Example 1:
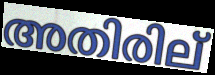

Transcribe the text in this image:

അതിരില്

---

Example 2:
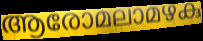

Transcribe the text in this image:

ആരോമലാമഴകു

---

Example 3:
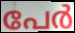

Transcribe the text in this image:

പേർ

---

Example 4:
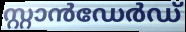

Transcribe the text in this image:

സ്റ്റാൻഡേർഡ്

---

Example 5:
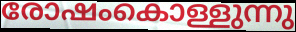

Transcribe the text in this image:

രോഷംകൊള്ളുന്നു